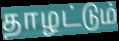
தாழட்டும்